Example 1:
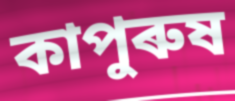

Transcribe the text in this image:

কাপুৰুষ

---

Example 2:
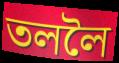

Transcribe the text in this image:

তললৈ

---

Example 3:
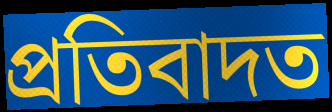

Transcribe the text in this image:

প্ৰতিবাদত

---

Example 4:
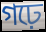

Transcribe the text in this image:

গঢ়ে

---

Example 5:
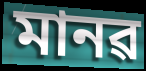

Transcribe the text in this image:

মানৱ